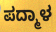
ಪದ್ಮಾಳ